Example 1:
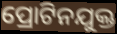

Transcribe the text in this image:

ପ୍ରୋଟିନଯୁକ୍ତ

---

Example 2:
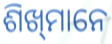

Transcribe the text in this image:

ଶିଖ୍‌ମାନେ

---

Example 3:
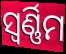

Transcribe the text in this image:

ସ୍ୱର୍ଣ୍ଣିମ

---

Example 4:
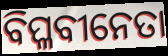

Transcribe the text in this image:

ବିପ୍ଳବୀନେତା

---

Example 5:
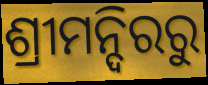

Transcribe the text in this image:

ଶ୍ରୀମନ୍ଦିରରୁ